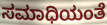
ಸಮಾಧಿಯಂತೆ